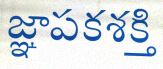
జ్ఞాపకశక్తి